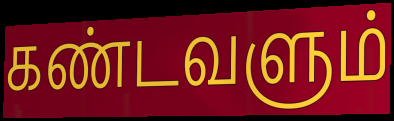
கண்டவளும்